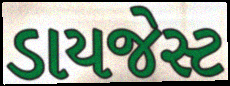
ડાયજેસ્ટ